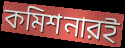
কমিশনারই